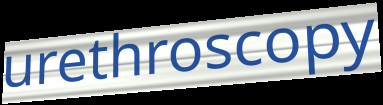
urethroscopy